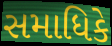
સમાધિકે